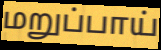
மறுப்பாய்